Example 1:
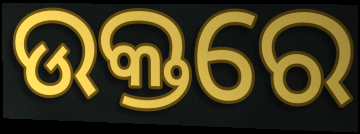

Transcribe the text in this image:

ଉକ୍ତରେ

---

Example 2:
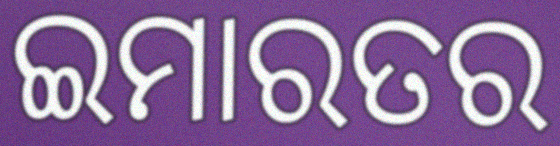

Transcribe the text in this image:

ଇମାରତର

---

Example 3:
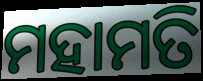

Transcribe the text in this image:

ମହାମତି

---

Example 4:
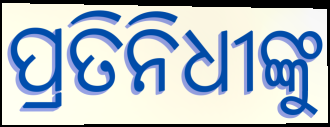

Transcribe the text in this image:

ପ୍ରତିନିଧୀଙ୍କୁ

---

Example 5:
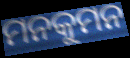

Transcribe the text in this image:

ମନକୁମନ